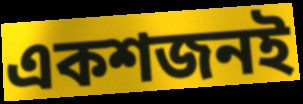
একশজনই